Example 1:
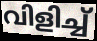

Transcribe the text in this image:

വിളിച്ച്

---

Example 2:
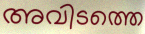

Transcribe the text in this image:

അവിടത്തെ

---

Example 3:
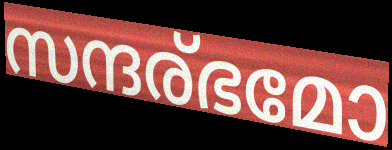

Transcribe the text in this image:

സന്ദര്ഭമോ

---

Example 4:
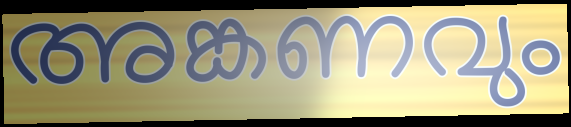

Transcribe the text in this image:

അങ്കണവും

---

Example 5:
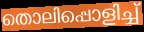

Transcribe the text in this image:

തൊലിപ്പൊളിച്ച്